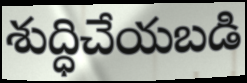
శుద్ధిచేయబడి